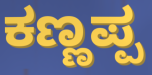
ಕಣ್ಣಪ್ಪ